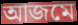
আজমে